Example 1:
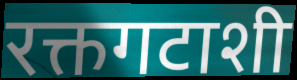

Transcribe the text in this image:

रक्तगटाशी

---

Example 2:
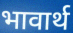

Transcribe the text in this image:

भावार्थ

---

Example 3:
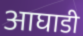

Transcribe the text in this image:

आघाडी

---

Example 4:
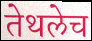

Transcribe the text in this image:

तेथलेच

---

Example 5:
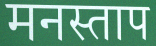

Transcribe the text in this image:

मनस्ताप